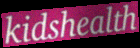
kidshealth